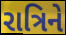
રાત્રિને